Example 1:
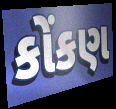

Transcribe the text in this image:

કોંકણ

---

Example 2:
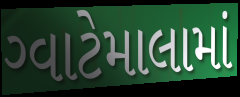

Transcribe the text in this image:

ગ્વાટેમાલામાં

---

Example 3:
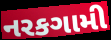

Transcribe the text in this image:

નરકગામી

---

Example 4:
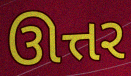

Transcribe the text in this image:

ઊત્તર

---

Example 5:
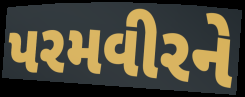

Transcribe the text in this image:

પરમવીરને